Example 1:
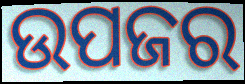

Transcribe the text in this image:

ଉପଜର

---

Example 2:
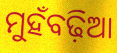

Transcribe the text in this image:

ମୁହଁବଢ଼ିଆ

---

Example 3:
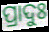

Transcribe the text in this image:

ପ୍ରାଦୁଃ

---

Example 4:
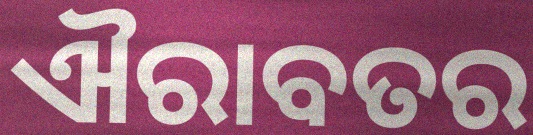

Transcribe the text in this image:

ଐରାବତର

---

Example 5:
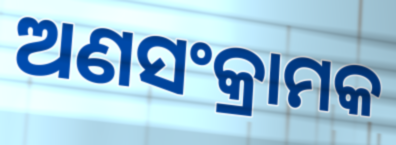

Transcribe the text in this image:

ଅଣସଂକ୍ରାମକ